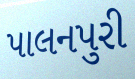
પાલનપુરી